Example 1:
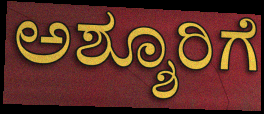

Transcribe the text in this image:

ಅಶ್ಶೂರಿಗೆ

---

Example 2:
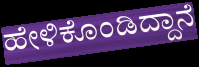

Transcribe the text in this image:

ಹೇಳಿಕೊಂಡಿದ್ದಾನೆ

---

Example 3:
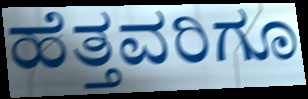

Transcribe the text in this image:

ಹೆತ್ತವರಿಗೂ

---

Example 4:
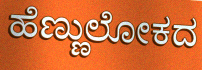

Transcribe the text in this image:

ಹೆಣ್ಣುಲೋಕದ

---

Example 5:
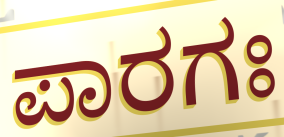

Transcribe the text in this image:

ಪಾರಗಃ